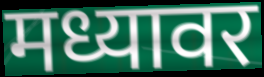
मध्यावर